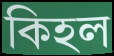
কিহল